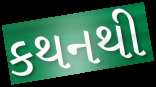
કથનથી